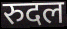
रुदल